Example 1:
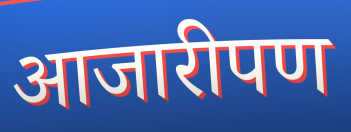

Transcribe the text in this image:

आजारीपण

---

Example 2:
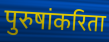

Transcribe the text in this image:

पुरुषांकरिता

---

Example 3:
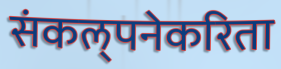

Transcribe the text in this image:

संकल्पनेकरिता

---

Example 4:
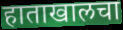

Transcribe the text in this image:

हाताखालचा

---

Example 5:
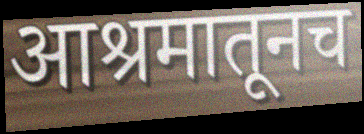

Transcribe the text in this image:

आश्रमातूनच